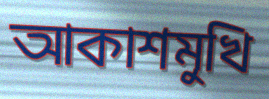
আকাশমুখি